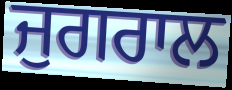
ਜੁਗਰਾਲ